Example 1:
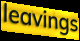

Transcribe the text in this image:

leavings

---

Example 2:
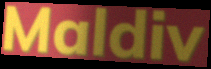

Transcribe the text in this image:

Maldiv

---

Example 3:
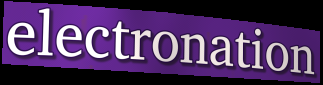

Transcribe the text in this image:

electronation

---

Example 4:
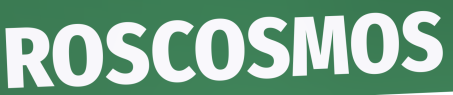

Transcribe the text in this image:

ROSCOSMOS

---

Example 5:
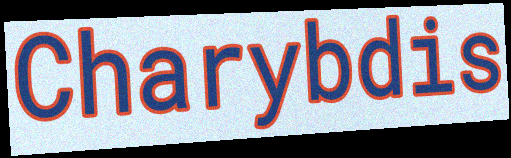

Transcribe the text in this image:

Charybdis